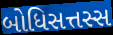
બોધિસત્તસ્સ